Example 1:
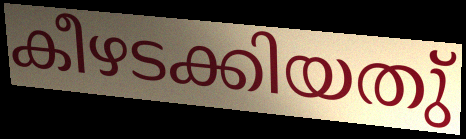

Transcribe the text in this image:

കീഴടക്കിയതു്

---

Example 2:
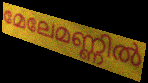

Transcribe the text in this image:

മേലേമണ്ണിൽ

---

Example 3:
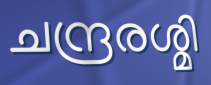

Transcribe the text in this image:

ചന്ദ്രരശ്മി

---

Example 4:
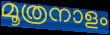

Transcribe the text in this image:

മൂത്രനാളം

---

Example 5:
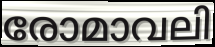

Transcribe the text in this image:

രോമാവലി